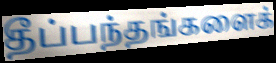
தீப்பந்தங்களைக்